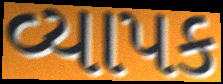
વ્યાપક